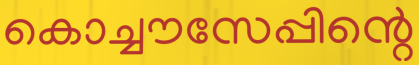
കൊച്ചൗസേപ്പിന്റെ